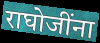
राघोजींना